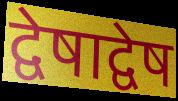
द्वेषाद्वेष